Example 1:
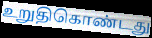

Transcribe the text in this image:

உறுதிகொண்டது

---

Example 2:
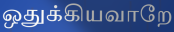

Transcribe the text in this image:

ஒதுக்கியவாறே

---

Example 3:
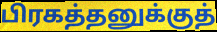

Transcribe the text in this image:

பிரகத்தனுக்குத்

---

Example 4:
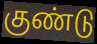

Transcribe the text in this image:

குண்டு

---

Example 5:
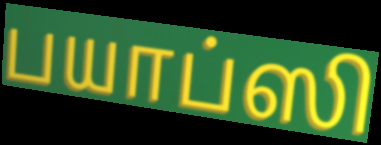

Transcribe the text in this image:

பயாப்ஸி